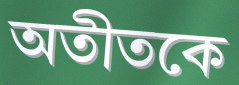
অতীতকে